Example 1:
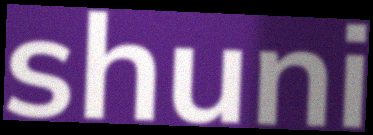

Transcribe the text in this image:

shuni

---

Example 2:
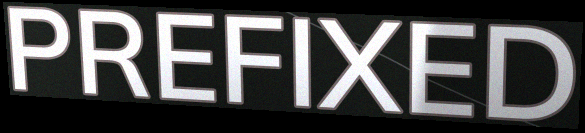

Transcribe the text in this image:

PREFIXED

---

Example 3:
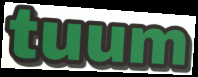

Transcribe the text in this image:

tuum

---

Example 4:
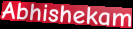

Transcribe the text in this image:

Abhishekam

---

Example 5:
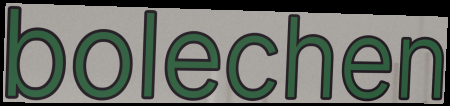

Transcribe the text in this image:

bolechen